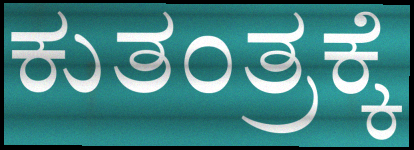
ಕುತಂತ್ರಕ್ಕೆ